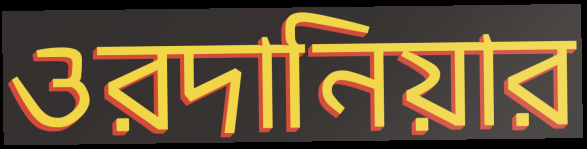
ওরদানিয়ার